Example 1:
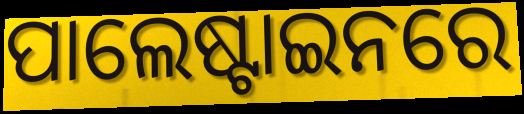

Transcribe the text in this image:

ପାଲେଷ୍ଟାଇନରେ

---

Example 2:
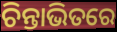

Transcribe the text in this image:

ଚିନ୍ତାଭିତରେ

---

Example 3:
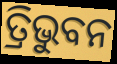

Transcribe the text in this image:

ତ୍ରିଭୁବନ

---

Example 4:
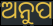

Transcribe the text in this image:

ଅନୁପ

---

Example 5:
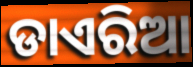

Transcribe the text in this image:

ଡାଏରିଆ